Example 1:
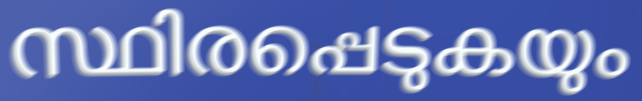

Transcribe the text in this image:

സ്ഥിരപ്പെടുകയും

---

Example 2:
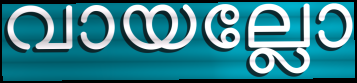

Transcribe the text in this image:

വായല്ലോ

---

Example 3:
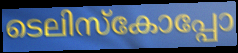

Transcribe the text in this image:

ടെലിസ്കോപ്പോ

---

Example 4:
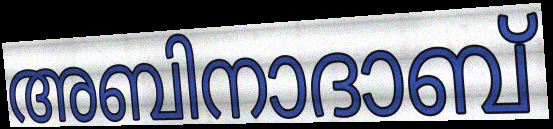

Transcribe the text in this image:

അബിനാദാബ്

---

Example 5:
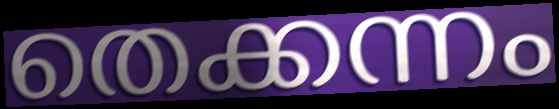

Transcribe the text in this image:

തെക്കന്നം